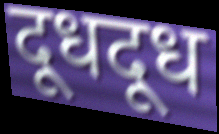
दूधदूध